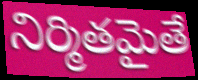
నిర్మితమైతే